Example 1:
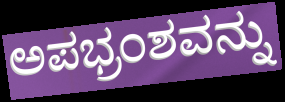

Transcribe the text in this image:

ಅಪಭ್ರಂಶವನ್ನು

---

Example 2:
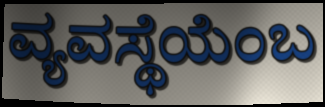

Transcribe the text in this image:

ವ್ಯವಸ್ಥೆಯೆಂಬ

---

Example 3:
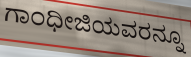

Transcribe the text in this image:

ಗಾಂಧೀಜಿಯವರನ್ನೂ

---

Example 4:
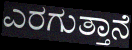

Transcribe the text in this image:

ಎರಗುತ್ತಾನೆ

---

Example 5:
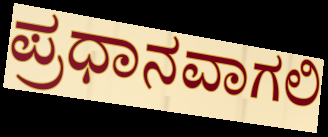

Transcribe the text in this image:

ಪ್ರಧಾನವಾಗಲಿ